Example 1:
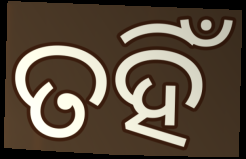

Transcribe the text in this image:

ତହିଁ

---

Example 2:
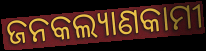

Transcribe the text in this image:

ଜନକଲ୍ୟାଣକାମୀ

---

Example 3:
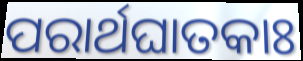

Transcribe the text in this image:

ପରାର୍ଥଘାତକାଃ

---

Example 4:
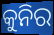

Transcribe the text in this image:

କୁନିର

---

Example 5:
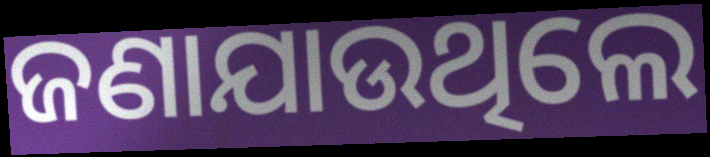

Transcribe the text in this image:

ଜଣାଯାଉଥିଲେ